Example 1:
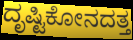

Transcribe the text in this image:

ದೃಷ್ಟಿಕೋನದತ್ತ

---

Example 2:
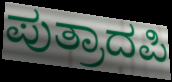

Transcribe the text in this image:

ಪುತ್ರಾದಪಿ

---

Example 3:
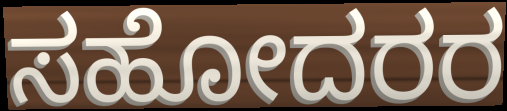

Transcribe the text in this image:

ಸಹೋದರರ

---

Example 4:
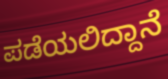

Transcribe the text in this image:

ಪಡೆಯಲಿದ್ದಾನೆ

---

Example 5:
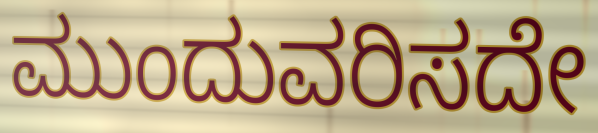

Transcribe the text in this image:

ಮುಂದುವರಿಸದೇ